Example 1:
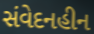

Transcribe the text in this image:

સંવેદનહીન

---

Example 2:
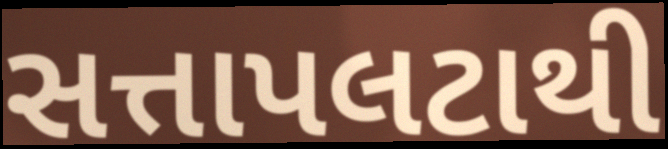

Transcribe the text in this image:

સત્તાપલટાથી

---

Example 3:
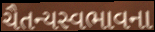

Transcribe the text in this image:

ચૈતન્યસ્વભાવના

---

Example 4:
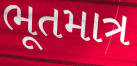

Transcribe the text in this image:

ભૂતમાત્ર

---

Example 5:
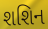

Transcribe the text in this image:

શશિન